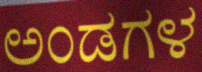
ಅಂಡಗಳ